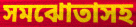
সমঝোতাসহ